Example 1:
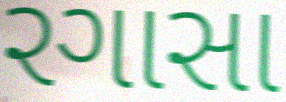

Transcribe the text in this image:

રગાસા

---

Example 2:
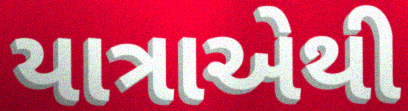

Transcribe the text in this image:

યાત્રાએથી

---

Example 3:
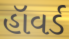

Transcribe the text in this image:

હૉવર્ડ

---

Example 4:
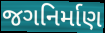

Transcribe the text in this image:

જગનિર્માણ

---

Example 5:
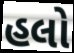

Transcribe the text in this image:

હલો